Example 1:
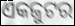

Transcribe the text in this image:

ଏକଜୁଟର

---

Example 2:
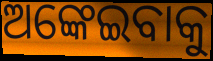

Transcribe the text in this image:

ଅଙ୍କେଇବାକୁ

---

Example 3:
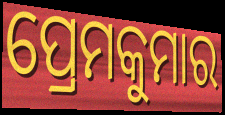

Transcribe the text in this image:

ପ୍ରେମକୁମାର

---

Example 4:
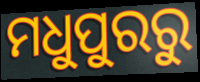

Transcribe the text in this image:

ମଧୁପୁରରୁ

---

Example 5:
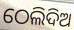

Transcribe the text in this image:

ଠେଲିଦିଅ